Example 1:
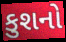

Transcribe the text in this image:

કુશનો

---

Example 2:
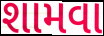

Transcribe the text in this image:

શામવા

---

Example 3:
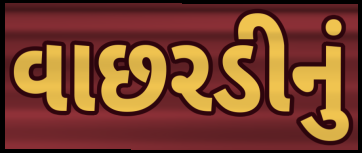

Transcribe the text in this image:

વાછરડીનું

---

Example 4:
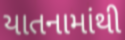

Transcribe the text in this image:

યાતનામાંથી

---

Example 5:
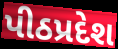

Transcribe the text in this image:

પીઠપ્રદેશ